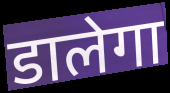
डालेगा